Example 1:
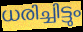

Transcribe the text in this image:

ധരിച്ചിട്ടും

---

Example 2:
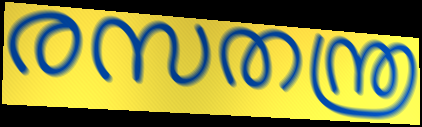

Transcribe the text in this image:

രസതന്ത്ര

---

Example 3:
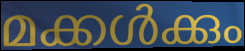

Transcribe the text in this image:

മക്കൾക്കും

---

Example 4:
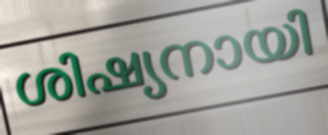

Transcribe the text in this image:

ശിഷ്യനായി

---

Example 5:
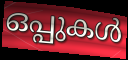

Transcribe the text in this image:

ഒപ്പുകൾ